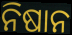
ନିଷାନ